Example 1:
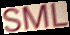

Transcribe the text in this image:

SML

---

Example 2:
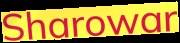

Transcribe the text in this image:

Sharowar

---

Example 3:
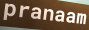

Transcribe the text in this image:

pranaam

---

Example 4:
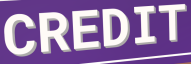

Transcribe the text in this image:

CREDIT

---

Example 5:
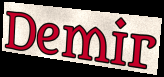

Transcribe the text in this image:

Demir